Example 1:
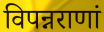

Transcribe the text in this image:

विपन्नराणां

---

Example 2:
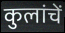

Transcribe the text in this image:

कुलांचें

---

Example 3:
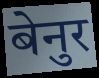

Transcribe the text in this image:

बेनुर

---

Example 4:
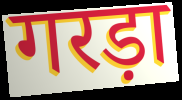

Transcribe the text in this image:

गरड़ा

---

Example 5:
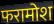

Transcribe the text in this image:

फरामोश